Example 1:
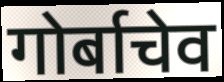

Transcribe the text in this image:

गोर्बाचेव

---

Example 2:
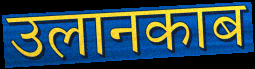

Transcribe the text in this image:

उलानकाब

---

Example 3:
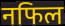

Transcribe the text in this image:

नफिल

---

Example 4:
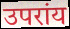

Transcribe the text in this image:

उपरांय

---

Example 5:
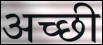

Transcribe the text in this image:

अच्‍छी